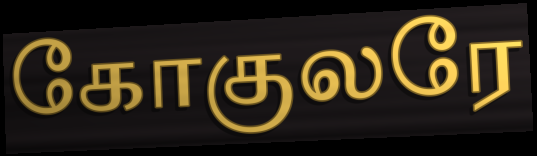
கோகுலரே